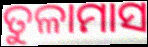
ତୁଳାମାସ